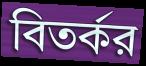
বিতর্কর